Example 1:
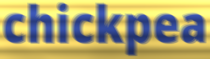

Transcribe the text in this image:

chickpea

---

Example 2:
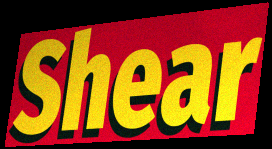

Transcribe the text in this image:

Shear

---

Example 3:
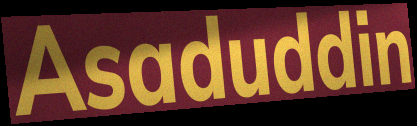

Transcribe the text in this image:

Asaduddin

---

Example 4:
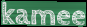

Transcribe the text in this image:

kamee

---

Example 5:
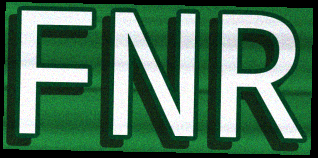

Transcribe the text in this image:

FNR